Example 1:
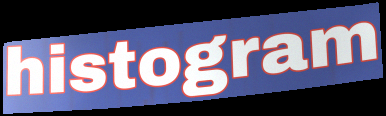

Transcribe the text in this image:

histogram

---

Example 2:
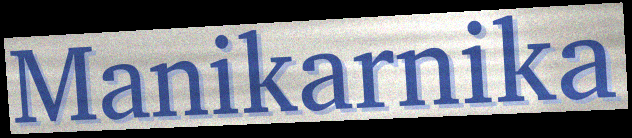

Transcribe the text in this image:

Manikarnika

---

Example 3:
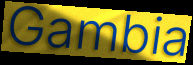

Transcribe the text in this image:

Gambia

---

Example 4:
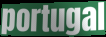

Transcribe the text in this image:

portugal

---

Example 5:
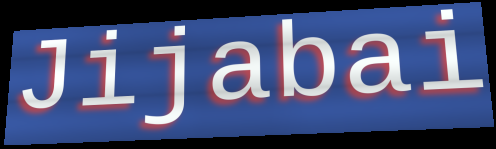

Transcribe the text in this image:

Jijabai